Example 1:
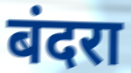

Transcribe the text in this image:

बंदरा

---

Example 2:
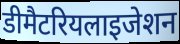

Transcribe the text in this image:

डीमैटरियलाइजेशन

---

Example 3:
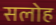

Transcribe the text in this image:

सलोह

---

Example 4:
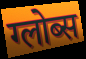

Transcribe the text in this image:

ग्लोब्स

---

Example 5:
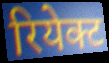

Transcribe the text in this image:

रियेक्ट